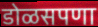
डोळसपणा